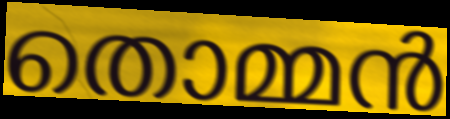
തൊമ്മൻ